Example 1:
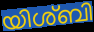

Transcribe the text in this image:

യിശ്ബി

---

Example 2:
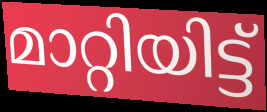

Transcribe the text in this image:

മാറ്റിയിട്ട്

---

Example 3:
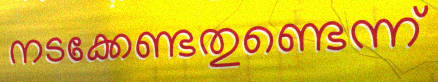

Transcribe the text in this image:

നടക്കേണ്ടതുണ്ടെന്ന്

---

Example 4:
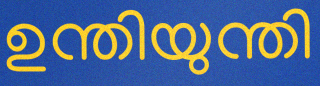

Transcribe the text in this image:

ഉന്തിയുന്തി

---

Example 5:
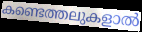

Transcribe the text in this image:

കണ്ടെത്തലുകളാൽ